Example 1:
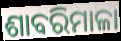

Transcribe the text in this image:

ଶାବରିମାଳା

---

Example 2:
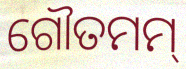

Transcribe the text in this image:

ଗୌତମମ୍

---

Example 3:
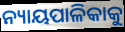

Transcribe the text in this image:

ନ୍ୟାୟପାଳିକାକୁ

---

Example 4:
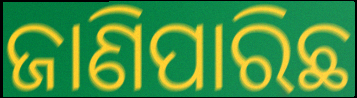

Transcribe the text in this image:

ଜାଣିପାରିଛ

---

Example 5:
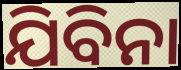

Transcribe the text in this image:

ଯିବିନା